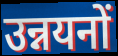
उन्नयनों